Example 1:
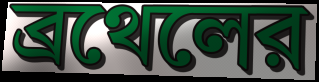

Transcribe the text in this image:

ব্রথেলের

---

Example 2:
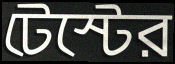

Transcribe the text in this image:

টেস্টের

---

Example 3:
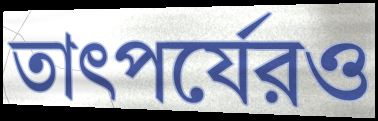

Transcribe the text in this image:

তাৎপর্যেরও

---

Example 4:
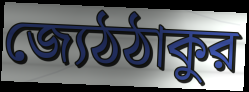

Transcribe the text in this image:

জ্যেঠঠাকুর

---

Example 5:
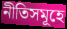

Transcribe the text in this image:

নীতিসমূহে